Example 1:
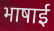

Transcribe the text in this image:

भाषाई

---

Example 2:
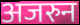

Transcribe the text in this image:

अजरुन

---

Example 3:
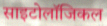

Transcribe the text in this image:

साइटोलॉजिकल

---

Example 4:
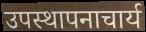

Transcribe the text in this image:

उपस्थापनाचार्य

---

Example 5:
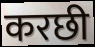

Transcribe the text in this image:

करछी